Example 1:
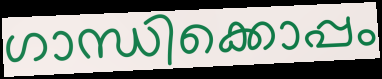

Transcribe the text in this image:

ഗാന്ധിക്കൊപ്പം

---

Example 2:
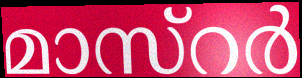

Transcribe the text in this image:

മാസ്റർ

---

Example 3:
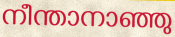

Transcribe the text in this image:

നീന്താനാഞ്ഞു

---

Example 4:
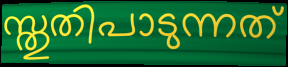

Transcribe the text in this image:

സ്തുതിപാടുന്നത്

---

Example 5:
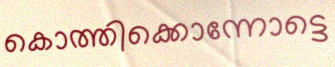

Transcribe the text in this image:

കൊത്തിക്കൊന്നോട്ടെ